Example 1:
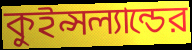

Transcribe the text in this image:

কুইন্সল্যান্ডের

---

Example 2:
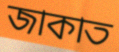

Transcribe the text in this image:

জাকাত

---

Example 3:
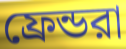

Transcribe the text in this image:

ফ্রেন্ডরা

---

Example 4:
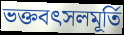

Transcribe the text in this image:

ভক্তবৎসলমূর্তি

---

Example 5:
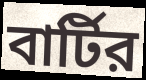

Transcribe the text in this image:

বার্টির